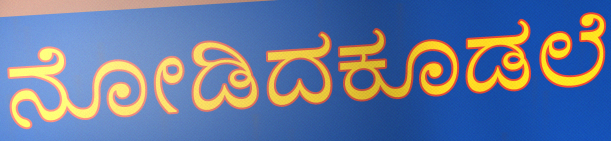
ನೋಡಿದಕೂಡಲೆ